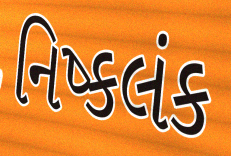
નિષ્કલંક